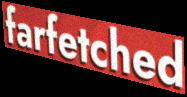
farfetched